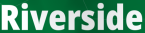
Riverside